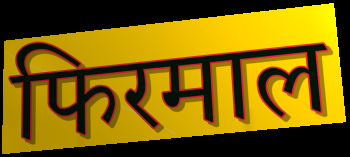
फिरमाल